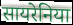
सायरेनिया